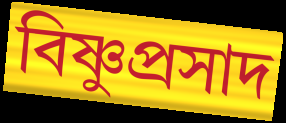
বিষ্ণুপ্রসাদ